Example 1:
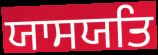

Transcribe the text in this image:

ਯਾਸਯਤਿ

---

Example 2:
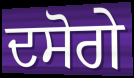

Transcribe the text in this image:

ਦਸੋਗੇ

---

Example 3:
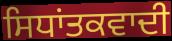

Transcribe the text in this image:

ਸਿਧਾਂਤਕਵਾਦੀ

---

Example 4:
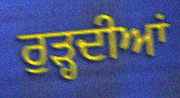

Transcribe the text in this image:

ਰੁੜ੍ਹਦੀਆਂ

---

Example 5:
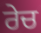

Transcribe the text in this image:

ਰੇਚ